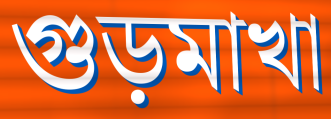
গুড়মাখা